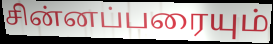
சின்னப்பரையும்